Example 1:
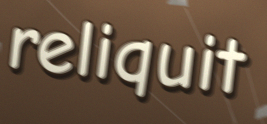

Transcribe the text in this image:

reliquit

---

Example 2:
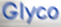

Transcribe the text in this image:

Glyco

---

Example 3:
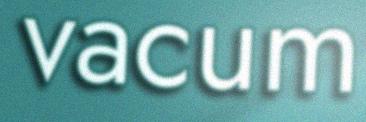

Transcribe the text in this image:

vacum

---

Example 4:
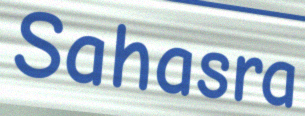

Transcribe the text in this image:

Sahasra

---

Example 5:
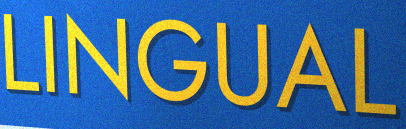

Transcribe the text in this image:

LINGUAL